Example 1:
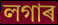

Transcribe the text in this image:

লগাৰ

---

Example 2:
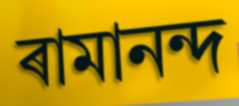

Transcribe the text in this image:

ৰামানন্দ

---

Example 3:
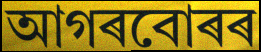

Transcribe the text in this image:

আগৰবোৰৰ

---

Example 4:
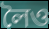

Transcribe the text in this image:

লৈও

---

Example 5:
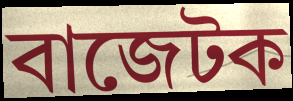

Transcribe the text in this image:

বাজেটক